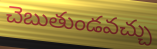
చెబుతుండవచ్చు